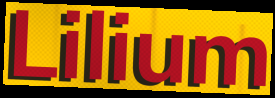
Lilium